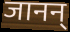
जानन्